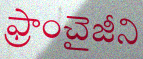
ఫ్రాంచైజీని